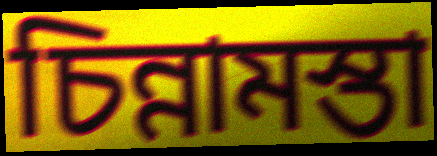
চিন্নামস্তা